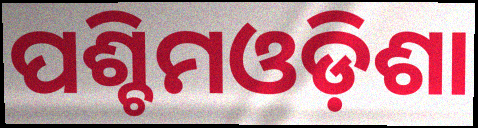
ପଶ୍ଚିମଓଡ଼ିଶା